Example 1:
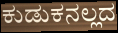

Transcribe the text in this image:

ಕುಡುಕನಲ್ಲದ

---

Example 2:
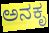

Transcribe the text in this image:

ಅನಕೃ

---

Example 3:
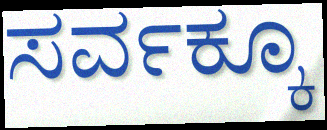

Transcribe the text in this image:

ಸರ್ವಕ್ಕೂ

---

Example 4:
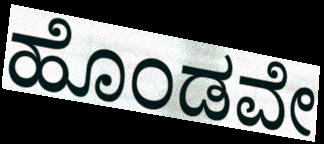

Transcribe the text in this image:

ಹೊಂಡವೇ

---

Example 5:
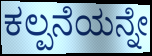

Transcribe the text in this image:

ಕಲ್ಪನೆಯನ್ನೇ